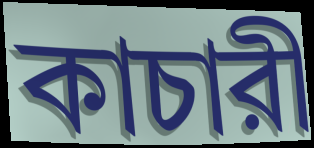
কাচারী